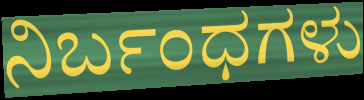
ನಿರ್ಬಂಧಗಳು